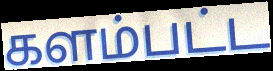
களம்பட்ட